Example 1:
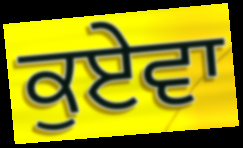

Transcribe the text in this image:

ਕੁਏਵਾ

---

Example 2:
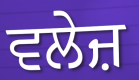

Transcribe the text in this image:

ਵਲੇਜ਼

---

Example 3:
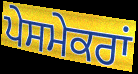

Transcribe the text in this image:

ਪੇਸਮੇਕਰਾਂ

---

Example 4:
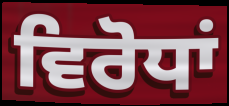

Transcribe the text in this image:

ਵਿਰੋਧਾਂ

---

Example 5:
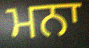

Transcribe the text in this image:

ਮਨਾ